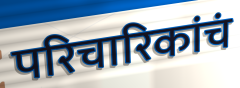
परिचारिकांचं